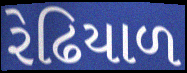
રેઢિયાળ